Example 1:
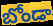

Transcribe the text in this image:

బోండా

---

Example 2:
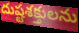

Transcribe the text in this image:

దుష్టశక్తులను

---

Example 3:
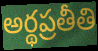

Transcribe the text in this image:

అర్థప్రతీతి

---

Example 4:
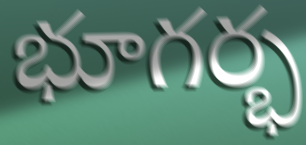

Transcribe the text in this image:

భూగర్భ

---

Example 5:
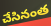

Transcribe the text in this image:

చేసినంత